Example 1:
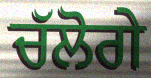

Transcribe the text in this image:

ਚੱਲੋਗੇ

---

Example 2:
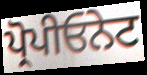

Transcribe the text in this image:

ਪ੍ਰੋਪੀਓਨੇਟ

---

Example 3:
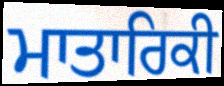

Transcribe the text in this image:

ਮਾਤਾਰਿਕੀ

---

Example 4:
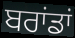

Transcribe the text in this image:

ਬਰਾਂਡਾਂ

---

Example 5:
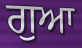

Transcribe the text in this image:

ਗੁਆ